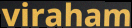
viraham